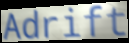
Adrift